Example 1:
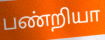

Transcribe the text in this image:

பண்றியா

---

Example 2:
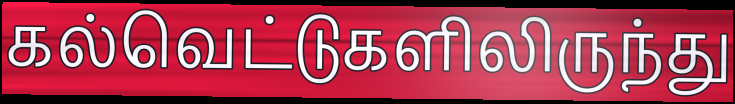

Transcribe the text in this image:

கல்வெட்டுகளிலிருந்து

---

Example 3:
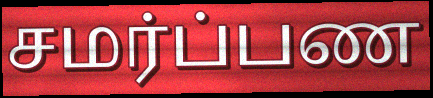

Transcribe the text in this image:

சமர்ப்பண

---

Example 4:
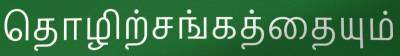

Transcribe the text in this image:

தொழிற்சங்கத்தையும்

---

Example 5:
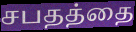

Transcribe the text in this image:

சபதத்தை